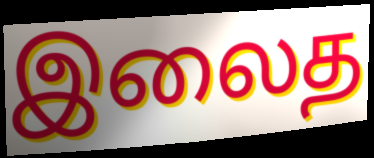
இலைத